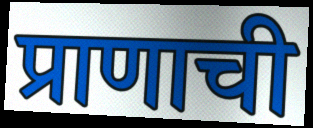
प्राणाची